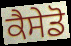
ਕੈਸੇਡੋ